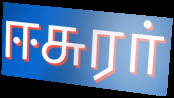
ஈசுரர்